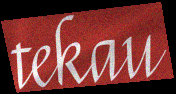
tekau